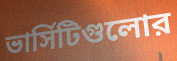
ভার্সিটিগুলোর